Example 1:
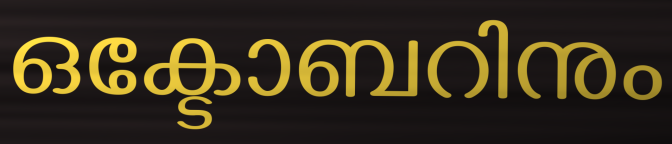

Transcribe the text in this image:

ഒക്ടോബറിനും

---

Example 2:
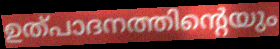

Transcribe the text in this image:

ഉത്പാദനത്തിന്റെയും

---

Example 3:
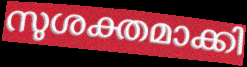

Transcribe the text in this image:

സുശക്തമാക്കി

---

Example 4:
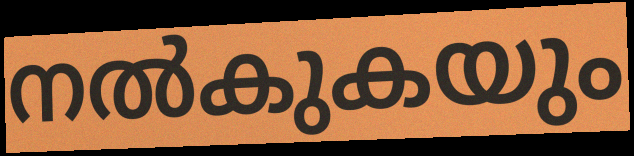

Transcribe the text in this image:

നൽകുകയും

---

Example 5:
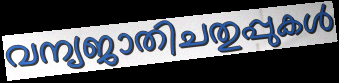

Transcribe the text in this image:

വന്യജാതിചതുപ്പുകൾ